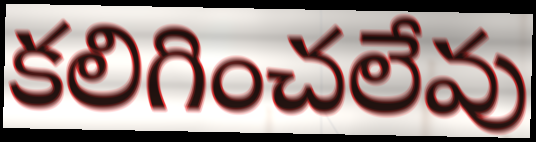
కలిగించలేవు